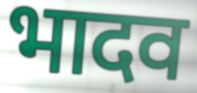
भादव